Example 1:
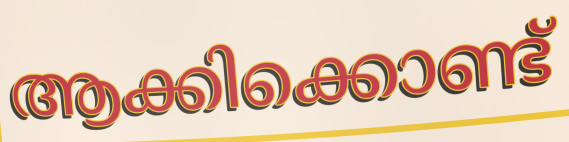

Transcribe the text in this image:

ആക്കിക്കൊണ്ട്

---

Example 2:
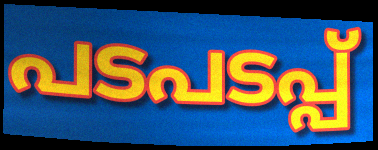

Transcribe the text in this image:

പടപടപ്പ്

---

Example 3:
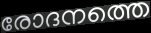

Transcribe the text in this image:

രോദനത്തെ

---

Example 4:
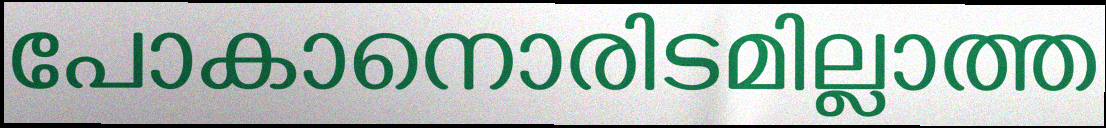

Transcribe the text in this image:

പോകാനൊരിടമില്ലാത്ത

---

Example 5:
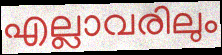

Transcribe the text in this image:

എല്ലാവരിലും